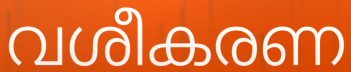
വശീകരണ